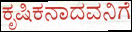
ಕೃಷಿಕನಾದವನಿಗೆ